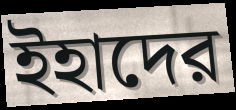
ইহাদের